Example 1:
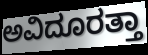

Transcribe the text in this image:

ಅವಿದೂರತ್ತಾ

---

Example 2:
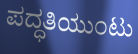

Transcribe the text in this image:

ಪದ್ಧತಿಯುಂಟು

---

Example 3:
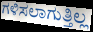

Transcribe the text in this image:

ಗಳಿಸಲಾಗುತ್ತಿಲ್ಲ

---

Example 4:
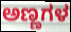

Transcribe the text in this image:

ಅಣ್ಣಗಳ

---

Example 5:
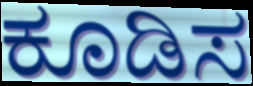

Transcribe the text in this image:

ಕೂಡಿಸ